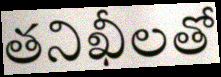
తనిఖీలతో